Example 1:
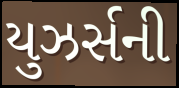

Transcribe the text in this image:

યુઝર્સની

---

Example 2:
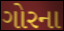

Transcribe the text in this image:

ગોરના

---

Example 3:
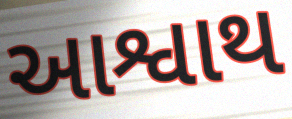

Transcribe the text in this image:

આશ્વાથ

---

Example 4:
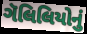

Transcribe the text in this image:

ગૅલિલિયોનું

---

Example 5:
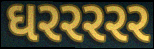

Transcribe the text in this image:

ઘરરરરર